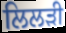
ਲਿਲੜੀ